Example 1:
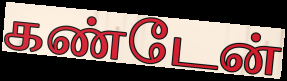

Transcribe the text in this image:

கண்டேன்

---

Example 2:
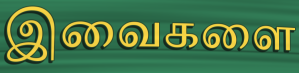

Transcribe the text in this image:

இவைகளை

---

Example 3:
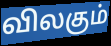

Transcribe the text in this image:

விலகும்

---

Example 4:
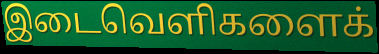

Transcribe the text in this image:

இடைவெளிகளைக்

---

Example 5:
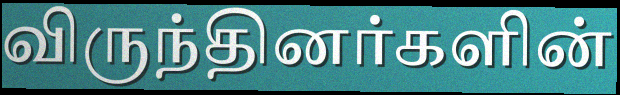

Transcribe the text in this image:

விருந்தினர்களின்